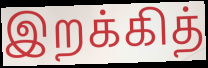
இறக்கித்